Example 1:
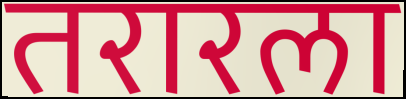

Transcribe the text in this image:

तरारला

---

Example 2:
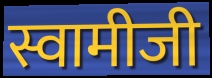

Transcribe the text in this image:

स्वामीजी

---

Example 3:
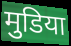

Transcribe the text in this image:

मुडिया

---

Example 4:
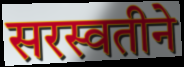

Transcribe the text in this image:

सरस्वतीने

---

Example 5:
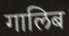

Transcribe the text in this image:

गालिब